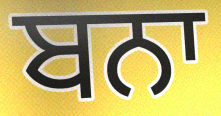
ਬਨਾ